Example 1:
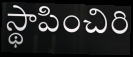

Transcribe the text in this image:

స్థాపించిరి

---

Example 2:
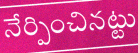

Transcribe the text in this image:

నేర్పించినట్టు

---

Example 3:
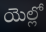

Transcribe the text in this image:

యెల్లో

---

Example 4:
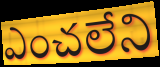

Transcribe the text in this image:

ఎంచలేని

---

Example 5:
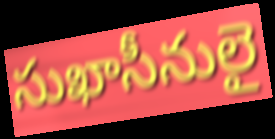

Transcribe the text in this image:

సుఖాసీనులై